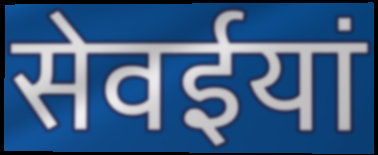
सेवईयां